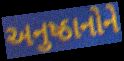
અનુષ્ઠાનોને